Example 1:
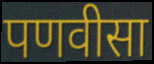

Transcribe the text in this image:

पणवीसा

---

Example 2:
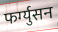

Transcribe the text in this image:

फर्ग्युसन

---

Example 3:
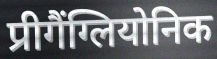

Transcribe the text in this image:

प्रीगैंग्लियोनिक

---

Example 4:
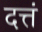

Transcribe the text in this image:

दत्तं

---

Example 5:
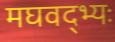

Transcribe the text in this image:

मघवद्भ्यः